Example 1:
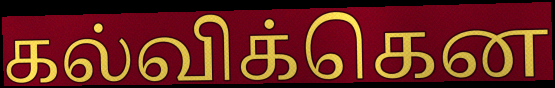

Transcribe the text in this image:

கல்விக்கென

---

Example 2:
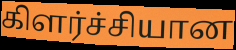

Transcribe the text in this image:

கிளர்ச்சியான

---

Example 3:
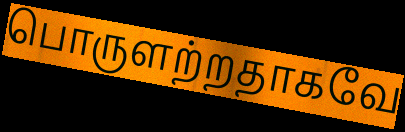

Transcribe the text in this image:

பொருளற்றதாகவே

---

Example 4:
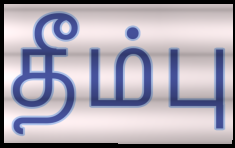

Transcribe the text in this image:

தீம்பு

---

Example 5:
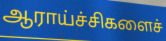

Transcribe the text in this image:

ஆராய்ச்சிகளைச்